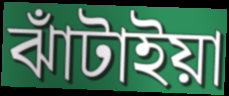
ঝাঁটাইয়া